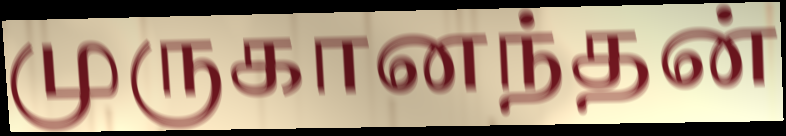
முருகானந்தன்